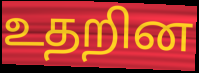
உதறின